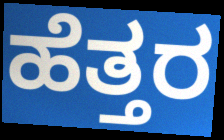
ಹೆತ್ತರ